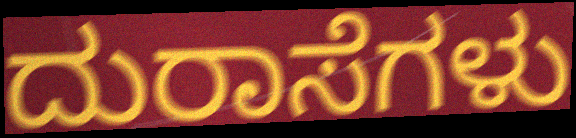
ದುರಾಸೆಗಳು